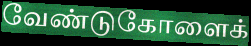
வேண்டுகோளைக்